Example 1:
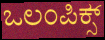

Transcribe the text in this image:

ಒಲಂಪಿಕ್ಸ್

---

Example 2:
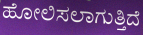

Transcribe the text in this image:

ಹೋಲಿಸಲಾಗುತ್ತಿದೆ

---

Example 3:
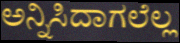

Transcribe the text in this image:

ಅನ್ನಿಸಿದಾಗಲೆಲ್ಲ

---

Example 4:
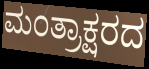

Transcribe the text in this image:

ಮಂತ್ರಾಕ್ಷರದ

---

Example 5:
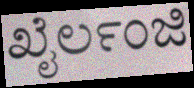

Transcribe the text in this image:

ಖೈರ್ಲಂಜಿ